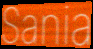
Sania